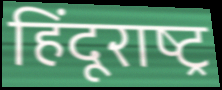
हिंदूराष्ट्र